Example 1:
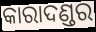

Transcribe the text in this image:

କାରାଦଣ୍ଡର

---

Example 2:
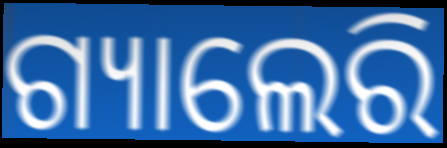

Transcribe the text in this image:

ଗ୍ୟାଲେରି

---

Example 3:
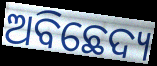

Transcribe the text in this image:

ଅବିଛେଦ୍ୟ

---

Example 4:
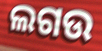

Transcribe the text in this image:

ଲଗଉ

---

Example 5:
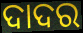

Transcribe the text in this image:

ଦାଦର